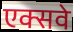
एक्सवे